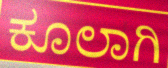
ಕೂಲಾಗಿ